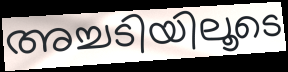
അച്ചടിയിലൂടെ